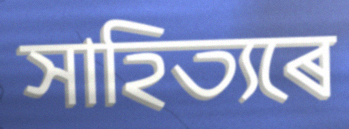
সাহিত্যৰে